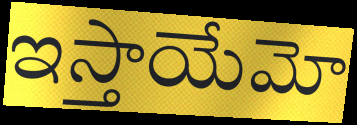
ఇస్తాయేమో